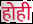
होही